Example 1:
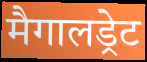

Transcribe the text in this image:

मैगालड्रेट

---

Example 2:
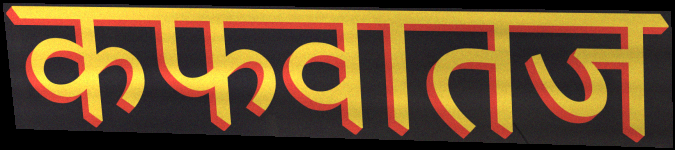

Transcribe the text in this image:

कफवातज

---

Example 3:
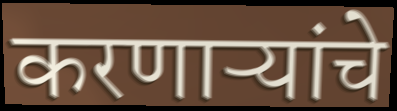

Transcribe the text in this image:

करणाऱ्यांचे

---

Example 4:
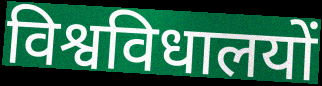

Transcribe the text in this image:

विश्वविधालयों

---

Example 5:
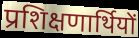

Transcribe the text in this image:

प्रशिक्षणार्थियों